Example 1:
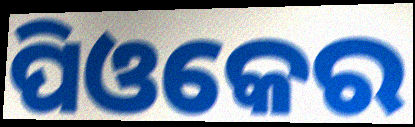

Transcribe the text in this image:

ପିଓକେର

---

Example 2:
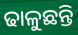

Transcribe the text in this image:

ଢାଳୁଛନ୍ତି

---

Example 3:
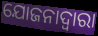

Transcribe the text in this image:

ଯୋଜନାଦ୍ବାରା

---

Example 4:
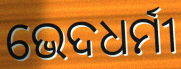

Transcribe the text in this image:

ଭେଦଧର୍ମୀ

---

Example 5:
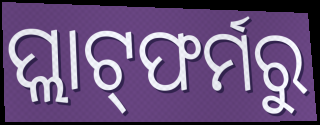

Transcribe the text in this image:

ପ୍ଲାଟ୍‌ଫର୍ମରୁ